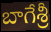
బాగేశ్రీ